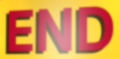
END